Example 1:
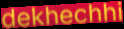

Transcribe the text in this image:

dekhechhi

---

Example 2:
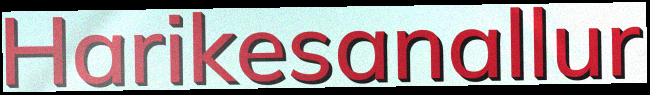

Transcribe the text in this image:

Harikesanallur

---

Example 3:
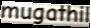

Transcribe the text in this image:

mugathil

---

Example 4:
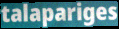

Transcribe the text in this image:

talapariges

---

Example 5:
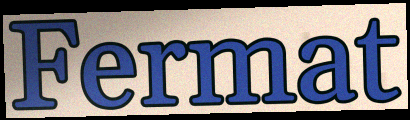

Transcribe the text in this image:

Fermat